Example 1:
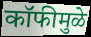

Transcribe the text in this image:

कॉफीमुळे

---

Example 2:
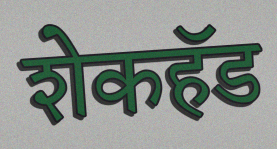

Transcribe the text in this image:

शेकहॅड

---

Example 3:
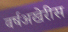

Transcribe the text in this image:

वर्षअखेरीस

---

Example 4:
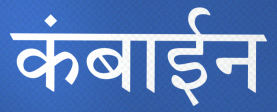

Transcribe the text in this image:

कंबाईन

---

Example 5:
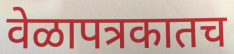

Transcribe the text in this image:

वेळापत्रकातच